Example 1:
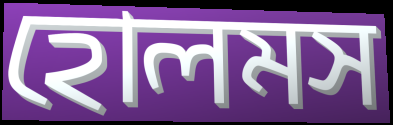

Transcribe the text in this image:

হোলমস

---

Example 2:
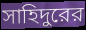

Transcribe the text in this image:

সাহিদুরের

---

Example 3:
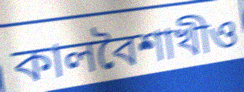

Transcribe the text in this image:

কালবৈশাখীও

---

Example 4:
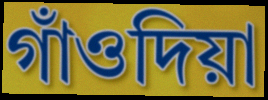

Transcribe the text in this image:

গাঁওদিয়া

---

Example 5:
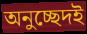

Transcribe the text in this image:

অনুচ্ছেদই